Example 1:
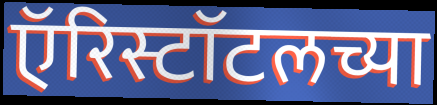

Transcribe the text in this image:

ऍरिस्टॉटलच्या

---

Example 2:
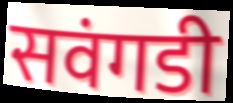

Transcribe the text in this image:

सवंगडी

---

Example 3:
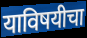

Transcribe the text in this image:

याविषयीचा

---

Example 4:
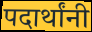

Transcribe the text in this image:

पदार्थांनी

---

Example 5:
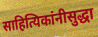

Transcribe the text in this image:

साहित्यिकांनीसुद्धा